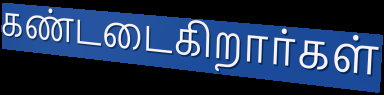
கண்டடைகிறார்கள்